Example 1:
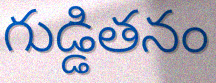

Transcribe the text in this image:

గుడ్డితనం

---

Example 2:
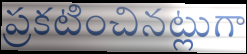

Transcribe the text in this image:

ప్రకటించినట్లుగా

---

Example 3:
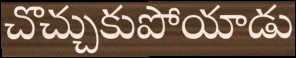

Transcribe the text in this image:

చొచ్చుకుపోయాడు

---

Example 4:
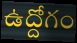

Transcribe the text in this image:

ఉద్దోగం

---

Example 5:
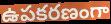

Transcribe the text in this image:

ఉపకరణంగా